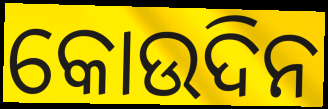
କୋଉଦିନ